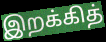
இறக்கித்